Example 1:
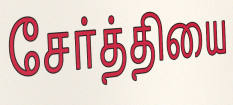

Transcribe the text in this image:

சேர்த்தியை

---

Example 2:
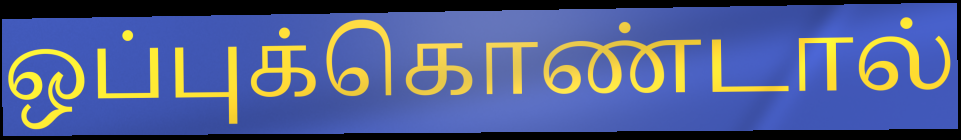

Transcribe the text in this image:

ஒப்புக்கொண்டால்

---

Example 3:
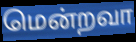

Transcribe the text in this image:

மென்றவா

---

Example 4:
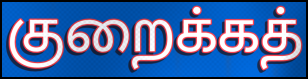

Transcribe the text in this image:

குறைக்கத்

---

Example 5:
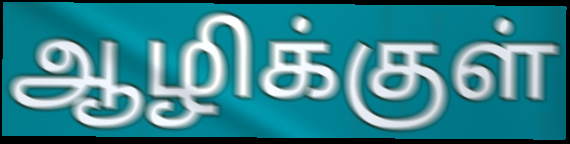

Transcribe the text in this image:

ஆழிக்குள்